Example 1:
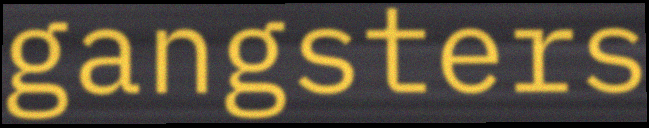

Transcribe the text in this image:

gangsters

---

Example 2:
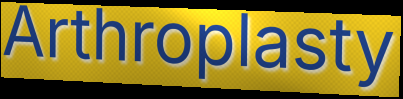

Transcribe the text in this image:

Arthroplasty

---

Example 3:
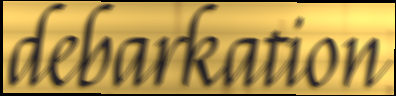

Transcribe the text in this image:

debarkation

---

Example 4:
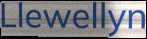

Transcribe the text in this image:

Llewellyn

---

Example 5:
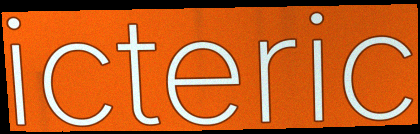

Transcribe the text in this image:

icteric